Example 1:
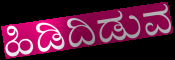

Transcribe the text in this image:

ಹಿಡಿದಿಡುವ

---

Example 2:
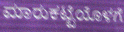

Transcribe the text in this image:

ಮಾರುಕಟ್ಟೆಯೊಳಗೆ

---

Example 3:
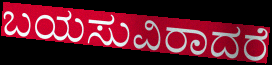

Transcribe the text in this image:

ಬಯಸುವಿರಾದರೆ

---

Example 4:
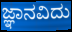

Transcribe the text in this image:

ಜ್ಞಾನವಿದು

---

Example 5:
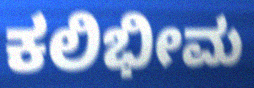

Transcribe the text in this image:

ಕಲಿಭೀಮ